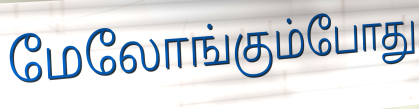
மேலோங்கும்போது